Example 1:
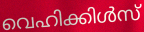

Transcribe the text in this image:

വെഹിക്കിൾസ്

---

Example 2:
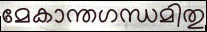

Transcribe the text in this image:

മേകാന്തഗന്ധമിതു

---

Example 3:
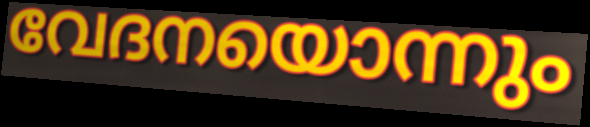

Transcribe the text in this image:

വേദനയൊന്നും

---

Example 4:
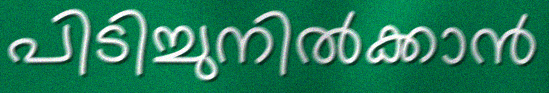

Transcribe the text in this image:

പിടിച്ചുനിൽക്കാൻ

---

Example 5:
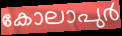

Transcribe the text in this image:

കോലാപുർ